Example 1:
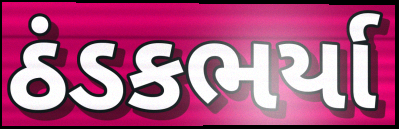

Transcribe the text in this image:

ઠંડકભર્યા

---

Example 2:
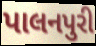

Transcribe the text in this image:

પાલનપુરી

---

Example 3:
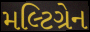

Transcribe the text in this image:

મલ્ટિગ્રેન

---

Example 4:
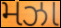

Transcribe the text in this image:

મઝા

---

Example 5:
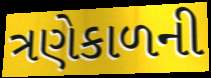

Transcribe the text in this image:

ત્રણેકાળની